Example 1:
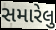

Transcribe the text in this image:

સમારેલુ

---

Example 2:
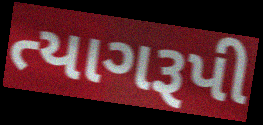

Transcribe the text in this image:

ત્યાગરૂપી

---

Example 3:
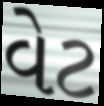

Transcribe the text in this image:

વેટ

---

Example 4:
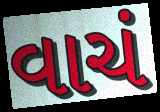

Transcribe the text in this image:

વાચં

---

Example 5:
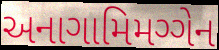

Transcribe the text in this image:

અનાગામિમગ્ગેન